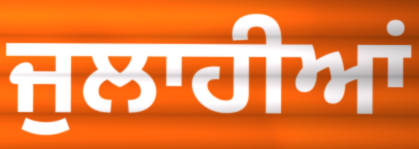
ਜੁਲਾਹੀਆਂ